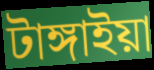
টাঙ্গাইয়া